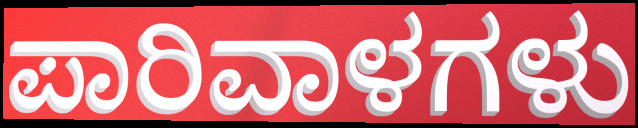
ಪಾರಿವಾಳಗಳು